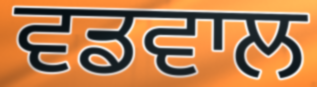
ਵਡਵਾਲ